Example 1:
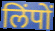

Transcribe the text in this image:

लिंपों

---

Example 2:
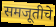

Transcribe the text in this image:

समजूतीचे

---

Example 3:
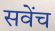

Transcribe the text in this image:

सवेंच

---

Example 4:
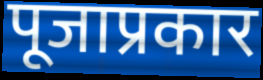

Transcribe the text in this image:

पूजाप्रकार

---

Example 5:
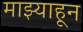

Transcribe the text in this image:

माझ्याहून